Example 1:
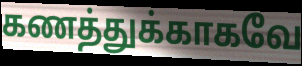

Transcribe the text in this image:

கணத்துக்காகவே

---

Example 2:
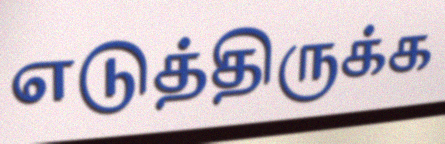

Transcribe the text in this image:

எடுத்திருக்க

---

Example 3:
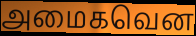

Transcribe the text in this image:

அமைகவென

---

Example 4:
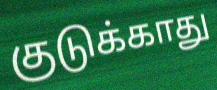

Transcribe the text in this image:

குடுக்காது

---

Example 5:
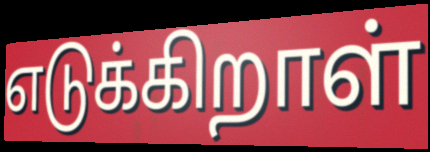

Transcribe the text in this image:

எடுக்கிறாள்